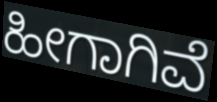
ಹೀಗಾಗಿವೆ